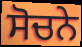
ਸੋਚਨੇ